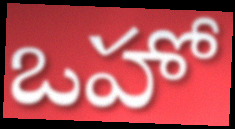
ఒహో